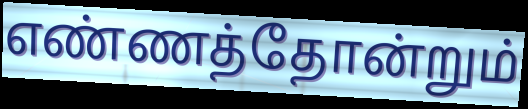
எண்ணத்தோன்றும்